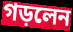
গড়লেন